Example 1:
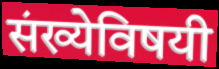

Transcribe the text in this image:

संख्येविषयी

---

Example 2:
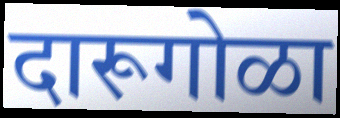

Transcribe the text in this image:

दारूगोळा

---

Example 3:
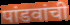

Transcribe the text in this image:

पांडवांची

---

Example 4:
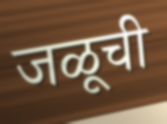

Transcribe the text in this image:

जळूची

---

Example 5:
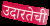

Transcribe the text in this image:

उदारतेची